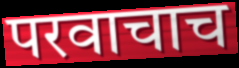
परवाचाच